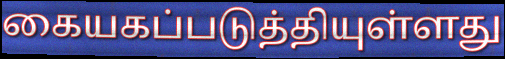
கையகப்படுத்தியுள்ளது